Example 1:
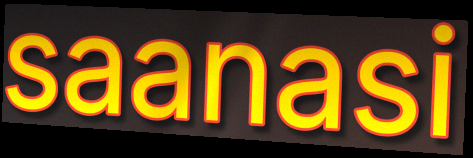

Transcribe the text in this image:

saanasi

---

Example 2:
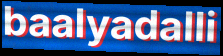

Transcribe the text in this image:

baalyadalli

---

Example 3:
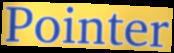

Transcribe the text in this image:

Pointer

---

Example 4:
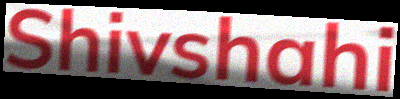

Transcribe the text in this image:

Shivshahi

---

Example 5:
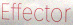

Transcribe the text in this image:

Effector